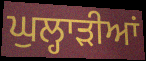
ਘੁਲ੍ਹਾੜੀਆਂ